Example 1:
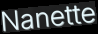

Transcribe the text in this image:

Nanette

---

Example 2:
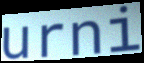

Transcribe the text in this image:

urni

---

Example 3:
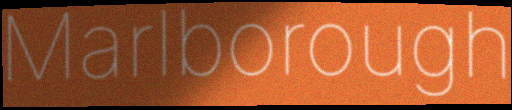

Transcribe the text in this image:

Marlborough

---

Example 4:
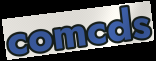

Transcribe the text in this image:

comcds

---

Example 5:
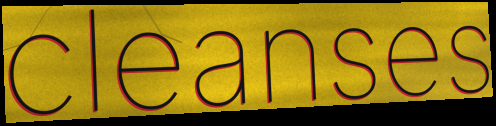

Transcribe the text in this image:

cleanses